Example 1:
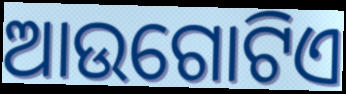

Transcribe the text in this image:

ଆଉଗୋଟିଏ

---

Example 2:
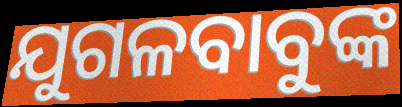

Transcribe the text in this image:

ଯୁଗଳବାବୁଙ୍କ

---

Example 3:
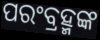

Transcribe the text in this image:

ପରଂବ୍ରହ୍ମଙ୍କ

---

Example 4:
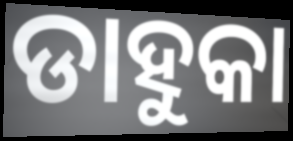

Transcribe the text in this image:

ଡାହୁକା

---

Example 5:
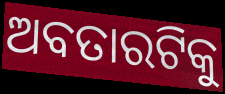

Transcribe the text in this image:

ଅବତାରଟିକୁ